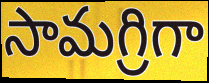
సామగ్రిగా